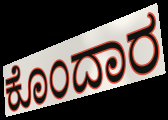
ಕೊಂದಾರ